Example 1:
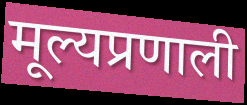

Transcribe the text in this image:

मूल्यप्रणाली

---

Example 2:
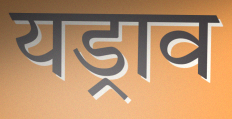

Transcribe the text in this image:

यड्राव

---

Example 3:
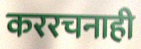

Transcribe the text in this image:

कररचनाही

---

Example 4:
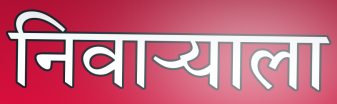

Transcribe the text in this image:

निवाऱ्याला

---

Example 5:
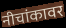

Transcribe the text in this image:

नीचांकावर